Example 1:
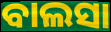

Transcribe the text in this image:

ବାଲସା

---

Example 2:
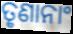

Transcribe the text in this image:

ତୃଣାନାଂ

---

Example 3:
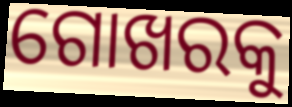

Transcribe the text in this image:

ଗୋଖରକୁ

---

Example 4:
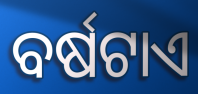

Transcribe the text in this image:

ବର୍ଷଟାଏ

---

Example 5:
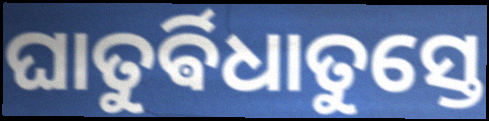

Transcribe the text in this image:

ଘାତୁର୍ଵିଧାତୁସ୍ତେ